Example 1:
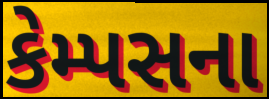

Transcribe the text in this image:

કેમ્પસના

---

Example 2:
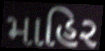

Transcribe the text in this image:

માહિર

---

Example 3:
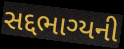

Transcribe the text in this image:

સદ્દભાગ્યની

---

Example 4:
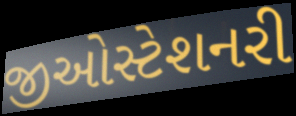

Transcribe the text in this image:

જીઓસ્ટેશનરી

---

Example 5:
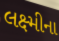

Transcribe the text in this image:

લક્ષ્મીના